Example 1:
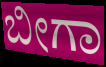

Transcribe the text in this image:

ಬೀಗಾ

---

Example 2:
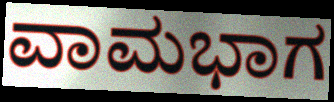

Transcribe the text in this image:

ವಾಮಭಾಗ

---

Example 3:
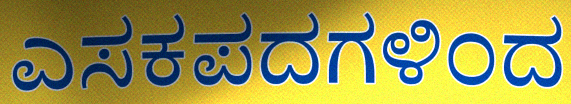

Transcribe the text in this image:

ಎಸಕಪದಗಳಿಂದ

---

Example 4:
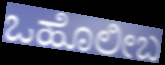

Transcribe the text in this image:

ಒಹೊಲೀಬ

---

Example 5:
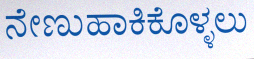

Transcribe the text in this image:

ನೇಣುಹಾಕಿಕೊಳ್ಳಲು